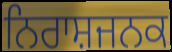
ਨਿਰਾਸ਼ਜਨਕ